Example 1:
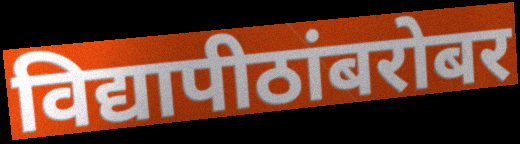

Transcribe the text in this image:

विद्यापीठांबरोबर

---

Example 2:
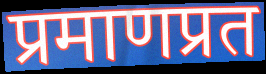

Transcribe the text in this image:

प्रमाणप्रत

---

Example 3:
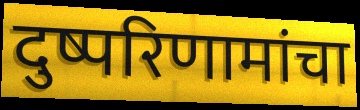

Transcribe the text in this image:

दुष्परिणामांचा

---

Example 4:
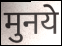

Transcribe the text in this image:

मुनये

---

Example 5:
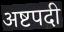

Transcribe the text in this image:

अष्टपदी